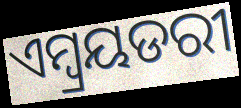
ଏମ୍ବ୍ରୟଡରୀ